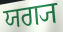
ਯਗ੍ਯ